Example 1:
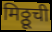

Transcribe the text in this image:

मिठ्ठूची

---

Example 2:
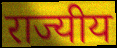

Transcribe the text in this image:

राज्यीय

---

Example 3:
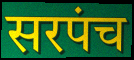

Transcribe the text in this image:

सरपंच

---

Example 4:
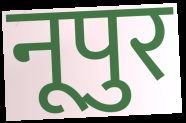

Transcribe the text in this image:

नूपुर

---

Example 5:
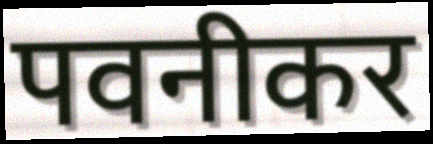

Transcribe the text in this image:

पवनीकर